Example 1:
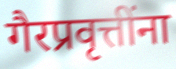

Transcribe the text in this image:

गैरप्रवृत्तींना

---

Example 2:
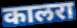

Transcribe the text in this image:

कालरा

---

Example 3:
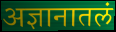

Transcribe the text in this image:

अज्ञानातलं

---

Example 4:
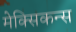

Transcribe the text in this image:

मेक्सिकन्स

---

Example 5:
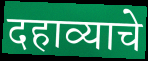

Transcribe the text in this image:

दहाव्याचे